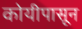
कोयीपासून